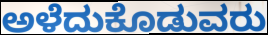
ಅಳೆದುಕೊಡುವರು